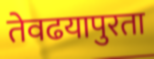
तेवढयापुरता